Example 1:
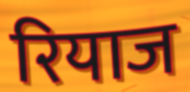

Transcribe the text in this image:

रियाज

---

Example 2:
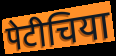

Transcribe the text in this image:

पेटीचिया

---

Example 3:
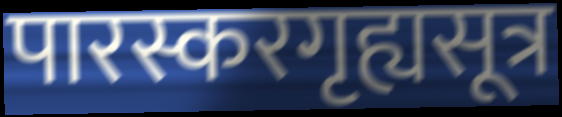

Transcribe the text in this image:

पारस्करगृह्यसूत्र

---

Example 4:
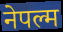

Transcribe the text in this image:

नेपल्म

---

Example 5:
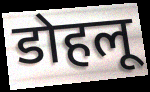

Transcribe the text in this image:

डोहलू